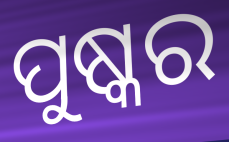
ପୁଷ୍କର